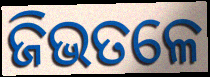
ଜିଭତଳେ